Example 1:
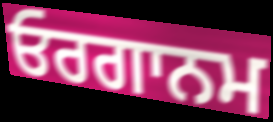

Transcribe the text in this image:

ਓਰਗਾਨਮ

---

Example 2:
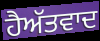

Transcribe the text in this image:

ਹੈਅੱਤਵਾਦ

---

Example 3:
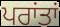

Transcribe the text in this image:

ਪਰਾਂਤਾਂ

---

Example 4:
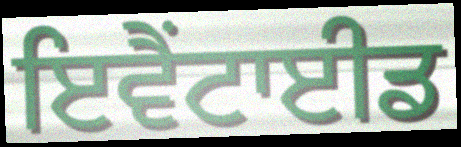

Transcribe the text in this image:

ਇਵੈਂਟਾਈਡ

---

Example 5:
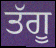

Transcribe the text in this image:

ਤੱਗੂ